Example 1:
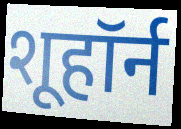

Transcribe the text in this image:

शूहॉर्न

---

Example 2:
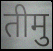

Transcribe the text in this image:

तीमु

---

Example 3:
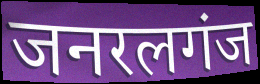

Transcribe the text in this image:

जनरलगंज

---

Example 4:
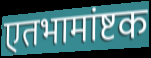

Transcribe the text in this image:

एतभामांष्टक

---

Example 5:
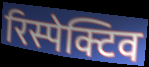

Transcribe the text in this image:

रिस्पेक्टिव